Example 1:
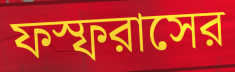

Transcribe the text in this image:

ফস্ফরাসের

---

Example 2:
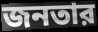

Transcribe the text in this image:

জনতার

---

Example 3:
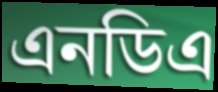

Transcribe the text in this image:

এনডিএ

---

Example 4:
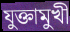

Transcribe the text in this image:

যুক্তামুখী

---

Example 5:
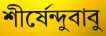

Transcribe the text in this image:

শীর্ষেন্দুবাবু